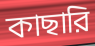
কাছারি